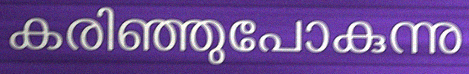
കരിഞ്ഞുപോകുന്നു